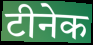
टीनेक